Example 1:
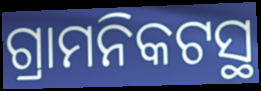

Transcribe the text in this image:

ଗ୍ରାମନିକଟସ୍ଥ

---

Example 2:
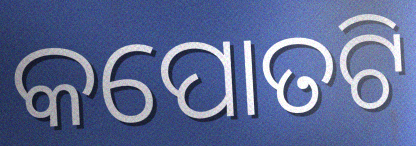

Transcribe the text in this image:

କପୋତଟି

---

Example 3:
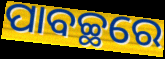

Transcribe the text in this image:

ପାବଚ୍ଛରେ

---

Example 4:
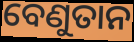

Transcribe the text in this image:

ବେଣୁତାନ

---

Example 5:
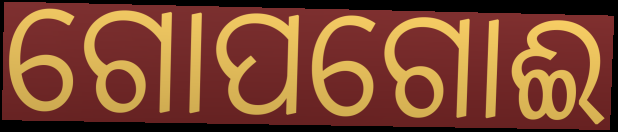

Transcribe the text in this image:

ଗୋପଗୋଈ